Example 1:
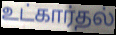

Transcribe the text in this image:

உட்கார்தல்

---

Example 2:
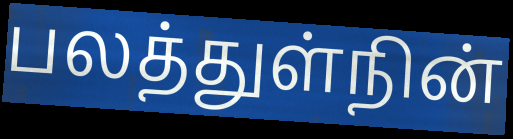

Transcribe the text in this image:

பலத்துள்நின்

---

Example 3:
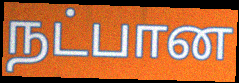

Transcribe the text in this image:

நட்பான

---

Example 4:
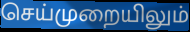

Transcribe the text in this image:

செய்முறையிலும்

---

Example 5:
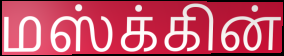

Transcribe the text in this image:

மஸ்க்கின்